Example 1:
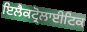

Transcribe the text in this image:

ਇਲੈਕਟ੍ਰੋਲਾਈਟਿਕ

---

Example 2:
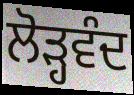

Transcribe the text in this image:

ਲੋੜ੍ਹਵੰਦ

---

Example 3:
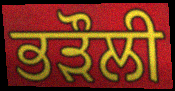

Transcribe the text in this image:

ਭੜੌਲੀ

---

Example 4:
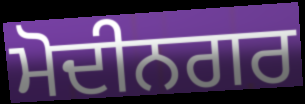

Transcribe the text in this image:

ਮੋਦੀਨਗਰ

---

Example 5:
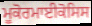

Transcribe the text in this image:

ਮੂਕੋਰਮਾਈਕੋਸਿਸ